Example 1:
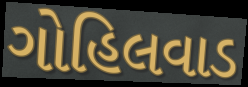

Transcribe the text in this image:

ગોહિલવાડ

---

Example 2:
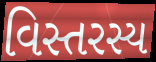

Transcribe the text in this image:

વિસ્તરસ્ય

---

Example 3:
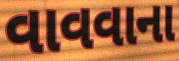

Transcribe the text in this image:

વાવવાના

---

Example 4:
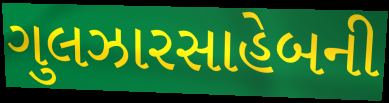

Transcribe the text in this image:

ગુલઝારસાહેબની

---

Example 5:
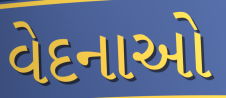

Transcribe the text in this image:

વેદનાઓ